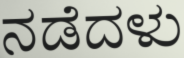
ನಡೆದಳು